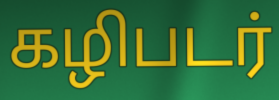
கழிபடர்